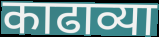
काढाव्या